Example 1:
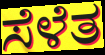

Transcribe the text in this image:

ಸೆಳೆತ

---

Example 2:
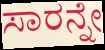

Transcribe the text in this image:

ಸಾರನ್ನೇ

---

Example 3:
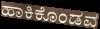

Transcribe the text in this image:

ಹಾಕಿಕೊಂಡವ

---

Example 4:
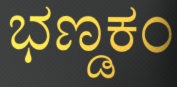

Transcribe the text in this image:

ಭಣ್ಡಕಂ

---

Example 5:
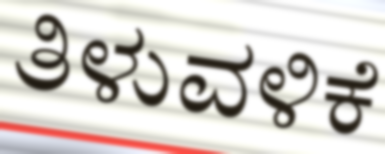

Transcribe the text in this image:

ತಿಳುವಳಿಕೆ